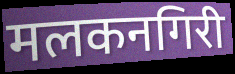
मलकनगिरी